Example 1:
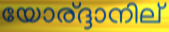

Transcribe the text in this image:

യോര്ദ്ദാനില്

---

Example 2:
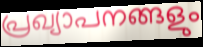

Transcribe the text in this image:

പ്രഖ്യാപനങ്ങളും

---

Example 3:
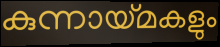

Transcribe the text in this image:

കുന്നായ്മകളും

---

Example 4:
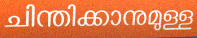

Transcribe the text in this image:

ചിന്തിക്കാനുമുള്ള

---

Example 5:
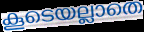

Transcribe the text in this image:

കൂടെയല്ലാതെ